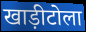
खाड़ीटोला